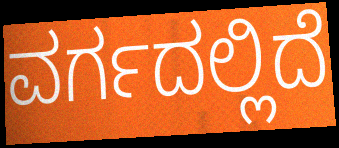
ವರ್ಗದಲ್ಲಿದೆ